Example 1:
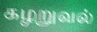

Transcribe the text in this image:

கழறுவல்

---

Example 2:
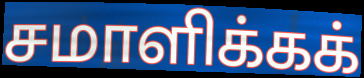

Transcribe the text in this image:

சமாளிக்கக்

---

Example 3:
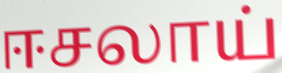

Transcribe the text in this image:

ஈசலாய்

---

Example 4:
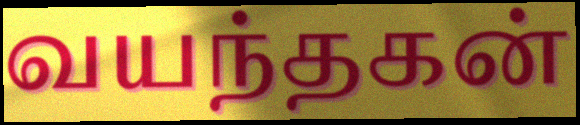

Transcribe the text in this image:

வயந்தகன்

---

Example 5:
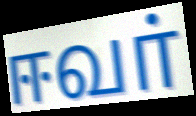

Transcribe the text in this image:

ஈவர்